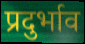
प्रदुर्भाव